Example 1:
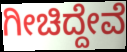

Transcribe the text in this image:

ಗೀಚಿದ್ದೇವೆ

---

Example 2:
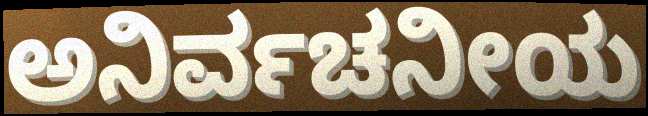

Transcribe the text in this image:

ಅನಿರ್ವಚನೀಯ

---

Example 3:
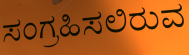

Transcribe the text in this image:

ಸಂಗ್ರಹಿಸಲಿರುವ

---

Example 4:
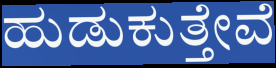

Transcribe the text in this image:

ಹುಡುಕುತ್ತೇವೆ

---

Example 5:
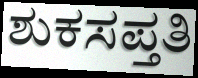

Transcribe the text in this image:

ಶುಕಸಪ್ತತಿ